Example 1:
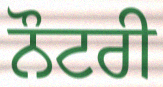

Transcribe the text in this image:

ਨੌਟਰੀ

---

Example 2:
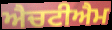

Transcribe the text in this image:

ਐਚਟੀਐਮ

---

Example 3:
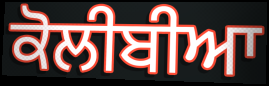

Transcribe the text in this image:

ਕੋਲੀਬੀਆ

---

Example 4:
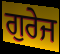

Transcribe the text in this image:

ਗੁਰੇਜ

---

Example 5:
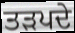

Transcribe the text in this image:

ਤੜਪਦੇ